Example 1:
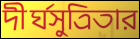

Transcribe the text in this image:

দীর্ঘসুত্রিতার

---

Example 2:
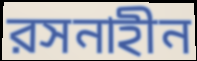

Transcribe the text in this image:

রসনাহীন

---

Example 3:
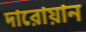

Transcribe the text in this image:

দারোয়ান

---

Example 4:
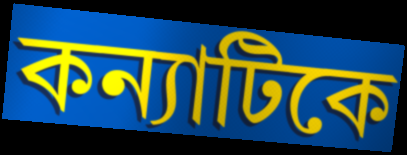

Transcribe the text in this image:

কন্যাটিকে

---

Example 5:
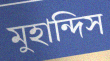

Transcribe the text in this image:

মুহান্দিস